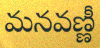
మనవణ్ణీ